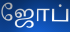
ஜோப்